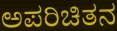
ಅಪರಿಚಿತನ